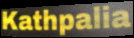
Kathpalia